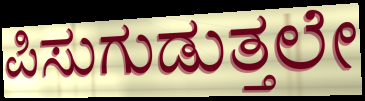
ಪಿಸುಗುಡುತ್ತಲೇ